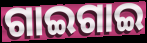
ଗାଇଗାଇ